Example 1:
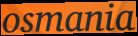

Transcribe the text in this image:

osmania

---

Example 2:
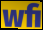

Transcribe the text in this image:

wfi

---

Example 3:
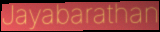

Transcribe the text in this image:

Jayabarathan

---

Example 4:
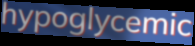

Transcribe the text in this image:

hypoglycemic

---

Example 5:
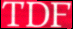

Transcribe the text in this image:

TDF